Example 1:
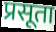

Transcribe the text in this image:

प्रसूता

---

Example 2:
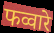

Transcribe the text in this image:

फव्वारे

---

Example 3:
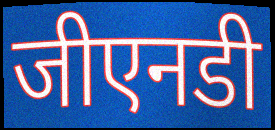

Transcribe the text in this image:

जीएनडी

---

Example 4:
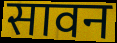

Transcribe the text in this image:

सावन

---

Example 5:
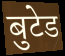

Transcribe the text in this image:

बुटेड